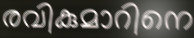
രവികുമാറിനെ